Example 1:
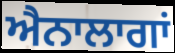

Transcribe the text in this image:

ਐਨਾਲਾਗਾਂ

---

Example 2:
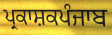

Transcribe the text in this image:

ਪ੍ਰਕਾਸ਼ਕਪੰਜਾਬ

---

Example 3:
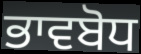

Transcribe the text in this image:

ਭਾਵਬੋਧ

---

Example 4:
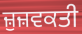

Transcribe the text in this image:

ਜ਼ੁਜ਼ਵਕਤੀ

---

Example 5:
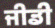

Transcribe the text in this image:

ਜੀਡੀ